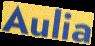
Aulia